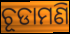
ଚୂଡାମଣି